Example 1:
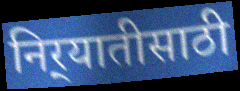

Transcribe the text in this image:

निर्यातीसाठी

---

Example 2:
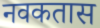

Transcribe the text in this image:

नवकतास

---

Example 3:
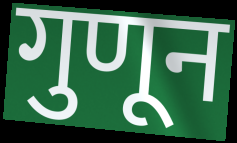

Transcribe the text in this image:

गुणून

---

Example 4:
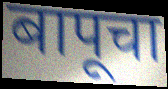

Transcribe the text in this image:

बापूचा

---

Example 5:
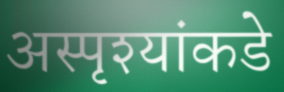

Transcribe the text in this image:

अस्पृश्यांकडे